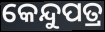
କେନ୍ଦୁପତ୍ର